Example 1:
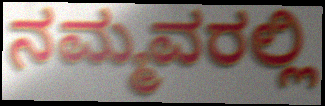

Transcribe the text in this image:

ನಮ್ಮವರಲ್ಲಿ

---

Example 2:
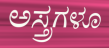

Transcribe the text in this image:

ಅಸ್ತ್ರಗಳೂ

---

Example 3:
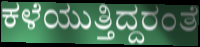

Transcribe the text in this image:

ಕಳೆಯುತ್ತಿದ್ದರಂತೆ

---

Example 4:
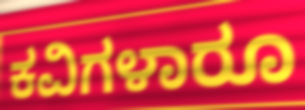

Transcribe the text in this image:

ಕವಿಗಳಾರೂ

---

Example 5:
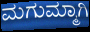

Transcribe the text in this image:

ಮಗುಮ್ಮಾಗಿ